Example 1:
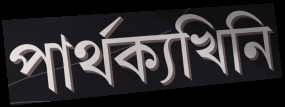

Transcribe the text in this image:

পাৰ্থক্যখিনি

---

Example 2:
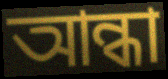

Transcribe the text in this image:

আন্ধা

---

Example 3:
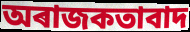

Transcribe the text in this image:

অৰাজকতাবাদ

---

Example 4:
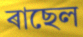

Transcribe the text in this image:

ৰাছেল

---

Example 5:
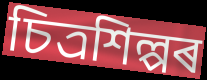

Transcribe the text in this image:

চিত্ৰশিল্পৰ